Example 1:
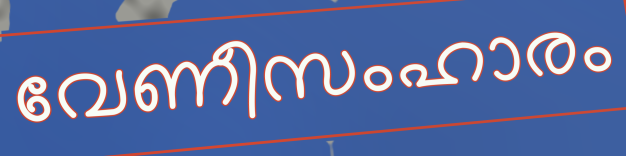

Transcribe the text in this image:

വേണീസംഹാരം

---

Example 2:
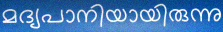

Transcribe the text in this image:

മദ്യപാനിയായിരുന്നു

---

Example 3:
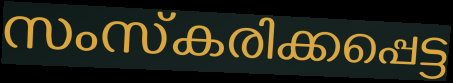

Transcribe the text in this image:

സംസ്‌കരിക്കപ്പെട്ട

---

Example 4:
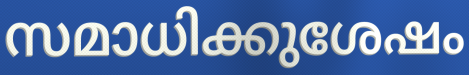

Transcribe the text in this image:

സമാധിക്കുശേഷം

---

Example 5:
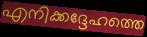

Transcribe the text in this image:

എനിക്കദ്ദേഹത്തെ